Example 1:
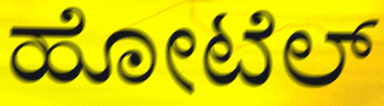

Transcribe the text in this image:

ಹೋಟೆಲ್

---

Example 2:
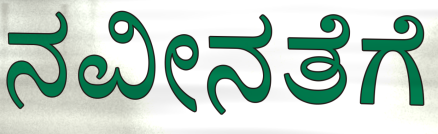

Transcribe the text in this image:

ನವೀನತೆಗೆ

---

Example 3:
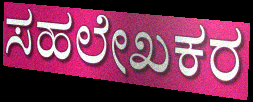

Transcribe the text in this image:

ಸಹಲೇಖಕರ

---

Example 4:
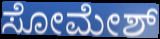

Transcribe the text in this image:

ಸೋಮೇಶ್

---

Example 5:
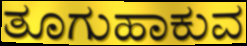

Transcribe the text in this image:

ತೂಗುಹಾಕುವ